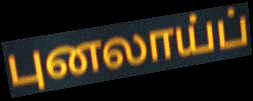
புனலாய்ப்